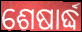
ଶେଷାର୍ଦ୍ଧ